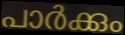
പാർക്കും